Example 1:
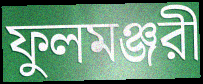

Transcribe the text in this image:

ফুলমঞ্জরী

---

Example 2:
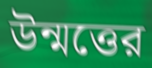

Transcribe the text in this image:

উন্মত্তের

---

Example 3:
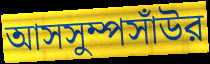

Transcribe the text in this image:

আসসুম্পসাঁউর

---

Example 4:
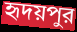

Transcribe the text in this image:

হৃদয়পুর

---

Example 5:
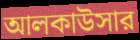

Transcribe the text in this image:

আলকাউসার